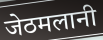
जेठमलानी